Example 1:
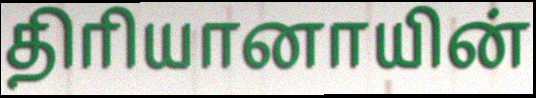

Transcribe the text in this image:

திரியானாயின்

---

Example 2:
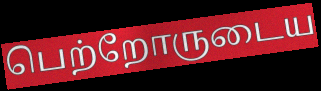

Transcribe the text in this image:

பெற்றோருடைய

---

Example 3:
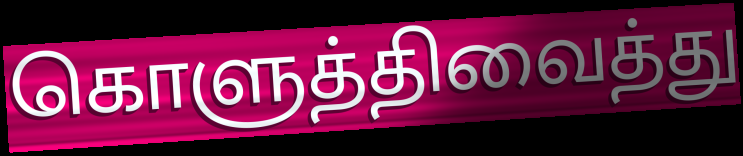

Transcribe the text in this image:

கொளுத்திவைத்து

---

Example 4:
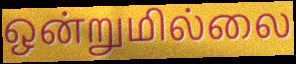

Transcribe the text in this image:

ஒன்றுமில்லை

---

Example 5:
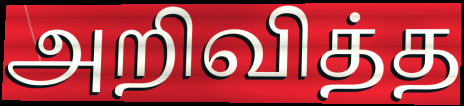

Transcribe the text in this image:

அறிவித்த